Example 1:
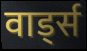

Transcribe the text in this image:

वार्ड्स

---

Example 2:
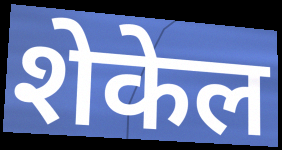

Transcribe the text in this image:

शेकेल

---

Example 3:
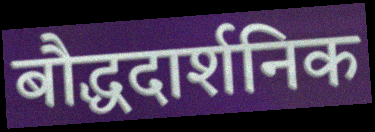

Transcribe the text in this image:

बौद्धदार्शनिक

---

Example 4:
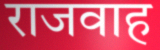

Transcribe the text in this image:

राजवाह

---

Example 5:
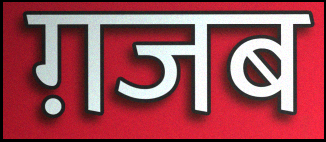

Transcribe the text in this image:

ग़जब